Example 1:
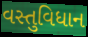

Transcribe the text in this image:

વસ્તુવિધાન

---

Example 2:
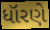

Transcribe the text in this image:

ધૉરણે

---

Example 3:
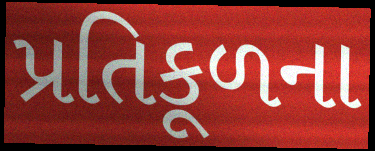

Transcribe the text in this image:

પ્રતિકૂળના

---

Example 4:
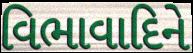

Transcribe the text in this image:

વિભાવાદિને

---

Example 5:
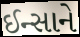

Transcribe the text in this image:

ઈન્સાને